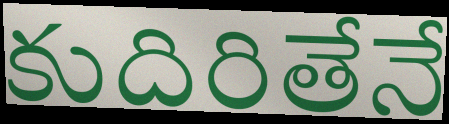
కుదిరితేనే